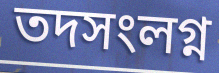
তদসংলগ্ন